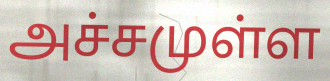
அச்சமுள்ள